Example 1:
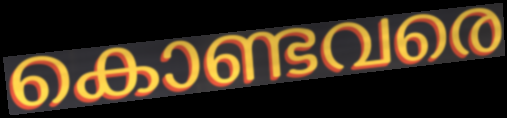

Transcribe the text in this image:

കൊണ്ടവരെ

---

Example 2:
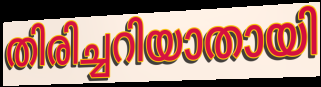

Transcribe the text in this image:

തിരിച്ചറിയാതായി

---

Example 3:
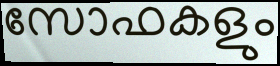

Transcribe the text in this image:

സോഫകളും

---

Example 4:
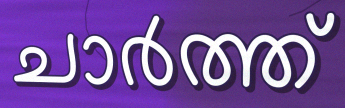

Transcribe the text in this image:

ചാർത്ത്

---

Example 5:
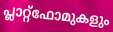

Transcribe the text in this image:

പ്ലാറ്റ്ഫോമുകളും